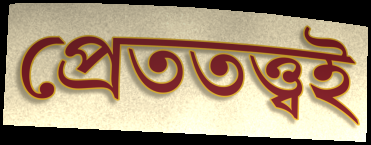
প্রেততত্ত্বই